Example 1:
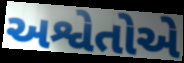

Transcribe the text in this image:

અશ્વેતોએ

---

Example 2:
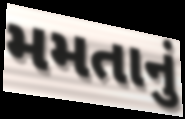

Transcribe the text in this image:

મમતાનું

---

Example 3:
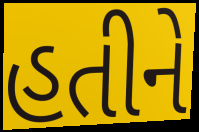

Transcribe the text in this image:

હતીને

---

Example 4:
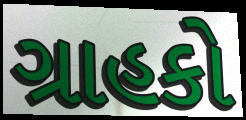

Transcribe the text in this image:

ગ્રાહકો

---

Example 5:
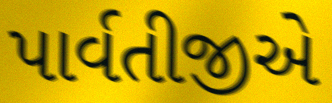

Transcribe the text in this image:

પાર્વતીજીએ